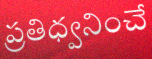
ప్రతిధ్వనించే